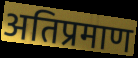
अतिप्रमाण